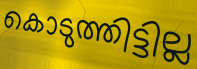
കൊടുത്തിട്ടില്ല